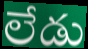
లేడు